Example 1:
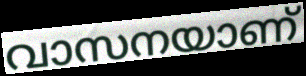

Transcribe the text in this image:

വാസനയാണ്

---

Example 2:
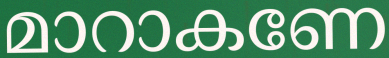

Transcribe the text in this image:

മാറാകണേ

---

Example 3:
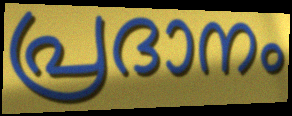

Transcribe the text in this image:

പ്രദാനം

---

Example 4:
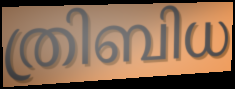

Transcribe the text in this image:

ത്രിബിധ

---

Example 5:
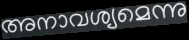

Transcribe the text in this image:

അനാവശ്യമെന്നു